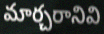
మార్చరానివి